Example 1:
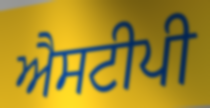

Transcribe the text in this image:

ਐਸਟੀਪੀ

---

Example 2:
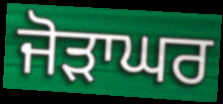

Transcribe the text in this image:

ਜੋੜਾਘਰ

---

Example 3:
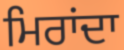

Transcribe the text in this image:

ਮਿਰਾਂਦਾ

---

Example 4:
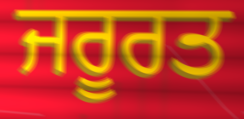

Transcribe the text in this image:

ਜਰੂਰਤ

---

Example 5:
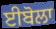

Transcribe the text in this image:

ਈਬੋਲਾ